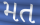
મત